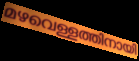
മഴവെള്ളത്തിനായി